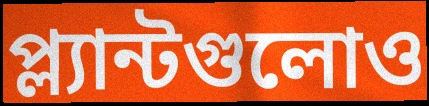
প্ল্যান্টগুলোও